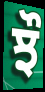
ਝੌ